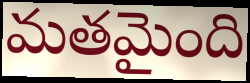
మతమైంది